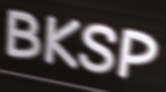
BKSP